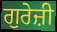
ਗੁਰੇਜ਼ੀ